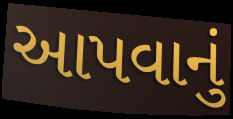
આપવાનું